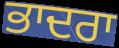
ਭਾਦਰਾ